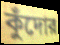
কুঁদোর